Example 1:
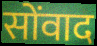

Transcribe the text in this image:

सोंवाद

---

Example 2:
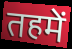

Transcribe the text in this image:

तहमें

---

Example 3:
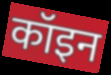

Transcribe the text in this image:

कॉइन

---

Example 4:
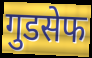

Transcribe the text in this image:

गुडसेफ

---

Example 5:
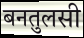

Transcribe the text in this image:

बनतुलसी